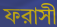
ফরাসী